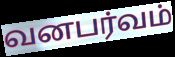
வனபர்வம்